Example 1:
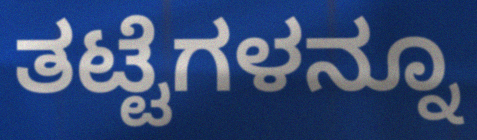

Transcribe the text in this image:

ತಟ್ಟೆಗಳನ್ನೂ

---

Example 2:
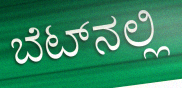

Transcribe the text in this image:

ಬೆಟ್‌ನಲ್ಲಿ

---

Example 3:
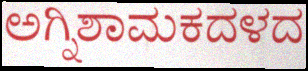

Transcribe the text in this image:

ಅಗ್ನಿಶಾಮಕದಳದ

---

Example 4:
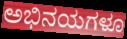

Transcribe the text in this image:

ಅಭಿನಯಗಳೂ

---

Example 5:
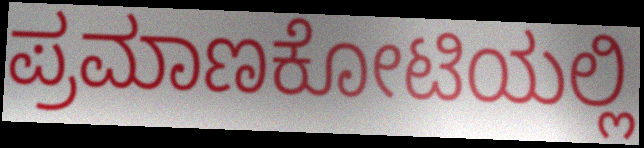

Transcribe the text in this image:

ಪ್ರಮಾಣಕೋಟಿಯಲ್ಲಿ